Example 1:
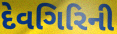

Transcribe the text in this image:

દેવગિરિની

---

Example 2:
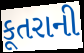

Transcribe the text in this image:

કૂતરાની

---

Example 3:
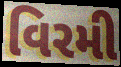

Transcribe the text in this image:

વિરમી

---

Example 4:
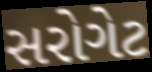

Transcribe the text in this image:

સરોગેટ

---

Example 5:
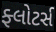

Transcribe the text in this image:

ફ્લોટર્સ